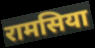
रामसिया